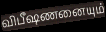
விபீஷணனையும்